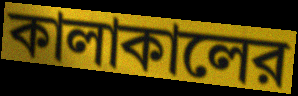
কালাকালের